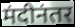
मंदीनंतर